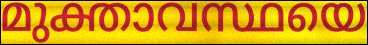
മുക്താവസ്ഥയെ